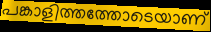
പങ്കാളിത്തത്തോടെയാണ്